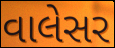
વાલેસર